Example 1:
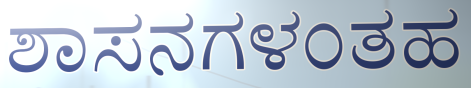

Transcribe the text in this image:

ಶಾಸನಗಳಂತಹ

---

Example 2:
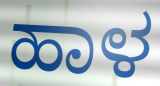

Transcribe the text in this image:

ಹಾಳ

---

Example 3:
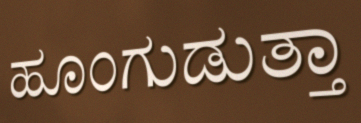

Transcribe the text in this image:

ಹೂಂಗುಡುತ್ತಾ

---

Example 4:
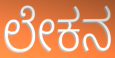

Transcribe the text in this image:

ಲೇಕನ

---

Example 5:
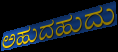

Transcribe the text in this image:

ಅಹುದಹುದು